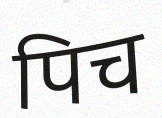
पिच